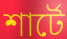
শার্টে